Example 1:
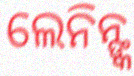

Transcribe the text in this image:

ଲେନିନ୍ଙ୍କ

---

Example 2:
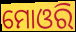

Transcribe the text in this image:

ମୋଓରି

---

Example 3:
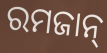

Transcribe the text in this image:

ରମଜାନ୍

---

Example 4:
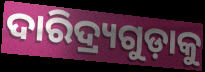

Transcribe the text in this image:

ଦାରିଦ୍ର୍ୟଗୁଡ଼ାକୁ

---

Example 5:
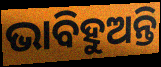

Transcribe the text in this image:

ଭାବିହୁଅନ୍ତି